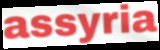
assyria